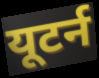
यूटर्न